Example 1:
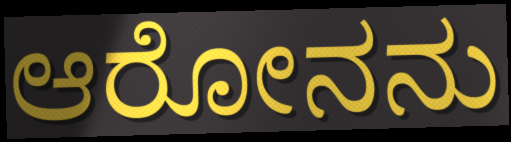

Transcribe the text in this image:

ಆರೋನನು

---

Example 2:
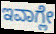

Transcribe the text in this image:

ಇವಾಗ್ಲೇ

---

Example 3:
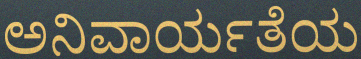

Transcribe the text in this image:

ಅನಿವಾರ್ಯತೆಯ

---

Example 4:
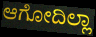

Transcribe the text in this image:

ಆಗೋದಿಲ್ಲಾ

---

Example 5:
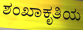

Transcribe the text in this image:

ಶಂಖಾಕೃತಿಯ